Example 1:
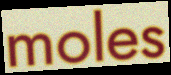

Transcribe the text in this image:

moles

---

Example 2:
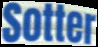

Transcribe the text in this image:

Sotter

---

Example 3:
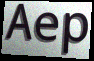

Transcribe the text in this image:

Aep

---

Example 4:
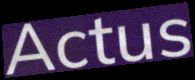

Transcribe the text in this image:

Actus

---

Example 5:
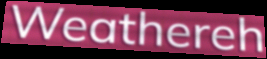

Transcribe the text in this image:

Weathereh